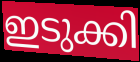
ഇടുക്കി